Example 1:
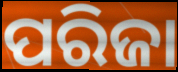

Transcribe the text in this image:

ପରିଜା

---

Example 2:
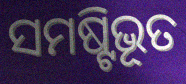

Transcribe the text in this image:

ସମଷ୍ଟିଭୂତ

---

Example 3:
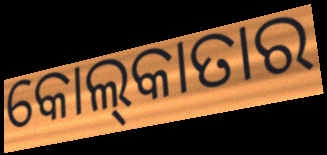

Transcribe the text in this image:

କୋଲ୍‌କାତାର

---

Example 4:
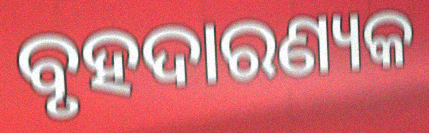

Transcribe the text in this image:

ବୃହଦାରଣ୍ୟକ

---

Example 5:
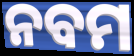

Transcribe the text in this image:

ନବମ